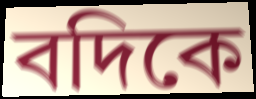
বদিকে